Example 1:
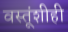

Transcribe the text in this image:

वस्तूंशीही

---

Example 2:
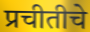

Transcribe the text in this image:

प्रचीतीचे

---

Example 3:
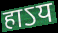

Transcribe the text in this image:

हाऽय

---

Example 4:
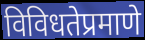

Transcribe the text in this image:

विविधतेप्रमाणे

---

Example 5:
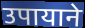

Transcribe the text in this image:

उपायाने